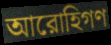
আরোহিগণ